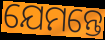
ଯେମନ୍ତେ